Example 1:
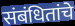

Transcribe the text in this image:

संबंधितांचे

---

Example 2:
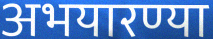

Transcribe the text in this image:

अभयारण्या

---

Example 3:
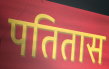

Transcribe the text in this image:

पतितास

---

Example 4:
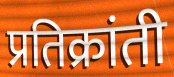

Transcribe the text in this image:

प्रतिक्रांती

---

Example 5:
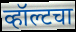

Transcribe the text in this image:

व्हॉल्टचा